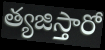
త్యజిస్తారో